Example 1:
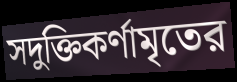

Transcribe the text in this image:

সদুক্তিকর্ণামৃতের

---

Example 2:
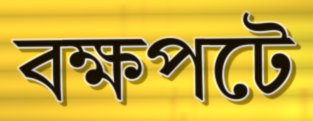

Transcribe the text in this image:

বক্ষপটে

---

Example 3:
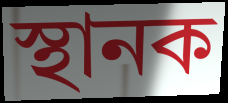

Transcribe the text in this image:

স্থানক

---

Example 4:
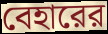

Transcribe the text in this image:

বেহারের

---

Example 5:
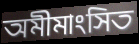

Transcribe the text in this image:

অমীমাংসিত